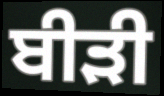
ਬੀਡ਼ੀ